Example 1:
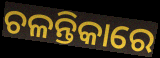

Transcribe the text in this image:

ଚଳନ୍ତିକାରେ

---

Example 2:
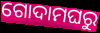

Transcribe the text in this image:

ଗୋଦାମଘରୁ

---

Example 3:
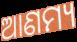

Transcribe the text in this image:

ଆଣମ୍ୟ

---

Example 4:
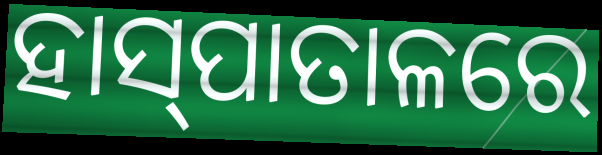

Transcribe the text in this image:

ହାସ୍‍ପାତାଳରେ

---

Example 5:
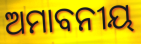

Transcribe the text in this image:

ଅମାବନୀୟ